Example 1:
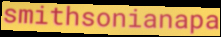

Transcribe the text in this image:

smithsonianapa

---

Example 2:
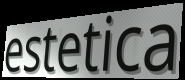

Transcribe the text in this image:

estetica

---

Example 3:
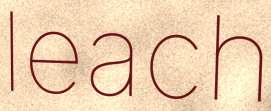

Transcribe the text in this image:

leach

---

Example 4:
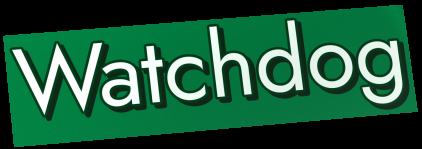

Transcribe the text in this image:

Watchdog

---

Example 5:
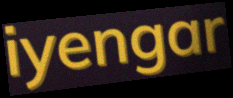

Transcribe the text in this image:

iyengar